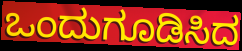
ಒಂದುಗೂಡಿಸಿದ